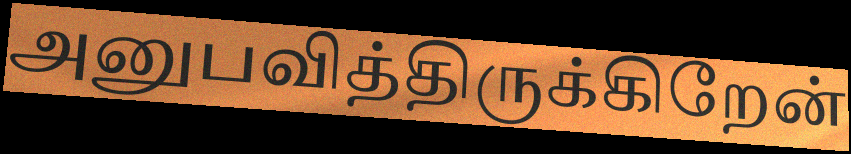
அனுபவித்திருக்கிறேன்